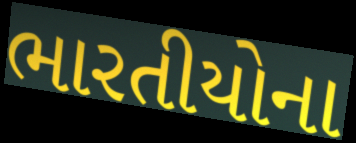
ભારતીયોના